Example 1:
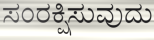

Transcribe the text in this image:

ಸಂರಕ್ಷಿಸುವುದು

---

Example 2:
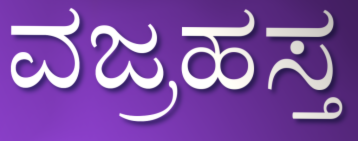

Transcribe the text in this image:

ವಜ್ರಹಸ್ತ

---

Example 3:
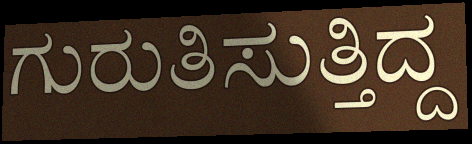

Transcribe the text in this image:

ಗುರುತಿಸುತ್ತಿದ್ದ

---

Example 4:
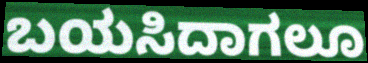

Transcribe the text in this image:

ಬಯಸಿದಾಗಲೂ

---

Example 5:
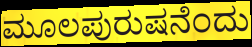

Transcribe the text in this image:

ಮೂಲಪುರುಷನೆಂದು